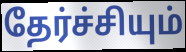
தேர்ச்சியும்